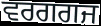
ਵਰਗਗਜ